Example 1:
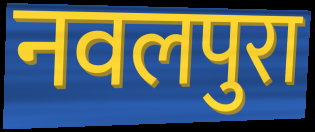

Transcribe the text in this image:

नवलपुरा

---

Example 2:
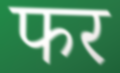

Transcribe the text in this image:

फर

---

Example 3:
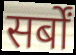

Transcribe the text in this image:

सर्बों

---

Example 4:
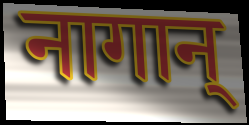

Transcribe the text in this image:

नागान्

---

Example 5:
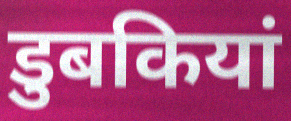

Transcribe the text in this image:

डुबकियां